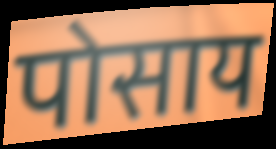
पोसाय